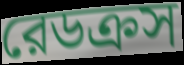
রেডক্রস